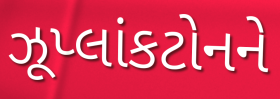
ઝૂપ્લાંકટોનને